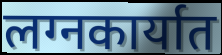
लग्नकार्यात